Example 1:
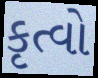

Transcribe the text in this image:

કૃત્વો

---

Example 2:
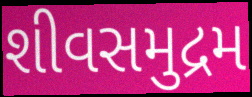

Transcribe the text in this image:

શીવસમુદ્રમ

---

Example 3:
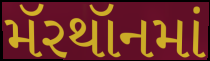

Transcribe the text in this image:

મૅરથૉનમાં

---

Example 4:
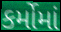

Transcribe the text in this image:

કર્મોમાં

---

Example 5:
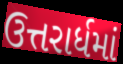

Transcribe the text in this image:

ઉત્તરાર્ધમાં